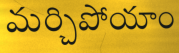
మర్చిపోయాం